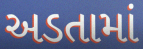
અડતામાં